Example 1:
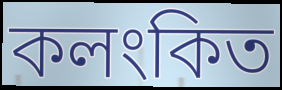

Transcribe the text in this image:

কলংকিত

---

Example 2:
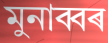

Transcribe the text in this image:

মুনাব্বৰ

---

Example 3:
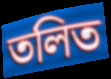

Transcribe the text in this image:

তলিত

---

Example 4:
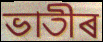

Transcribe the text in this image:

ভাতীৰ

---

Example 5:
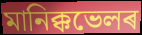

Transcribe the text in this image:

মানিক্কভেলৰ